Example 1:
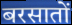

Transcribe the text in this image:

बरसातों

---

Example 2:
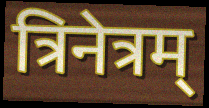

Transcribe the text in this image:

त्रिनेत्रम्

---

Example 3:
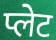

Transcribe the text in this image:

प्लेट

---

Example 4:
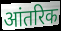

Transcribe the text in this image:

आंतरिक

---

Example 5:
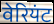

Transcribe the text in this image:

वेरियंट